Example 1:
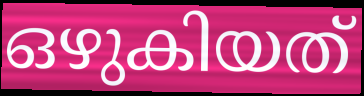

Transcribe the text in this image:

ഒഴുകിയത്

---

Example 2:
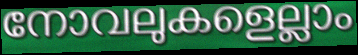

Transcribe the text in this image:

നോവലുകളെല്ലാം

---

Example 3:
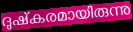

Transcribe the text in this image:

ദുഷ്‌കരമായിരുന്നു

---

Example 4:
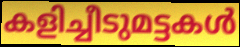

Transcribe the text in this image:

കളിച്ചീടുമട്ടകൾ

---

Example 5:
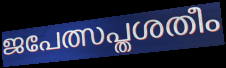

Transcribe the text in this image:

ജപേത്സപ്തശതീം